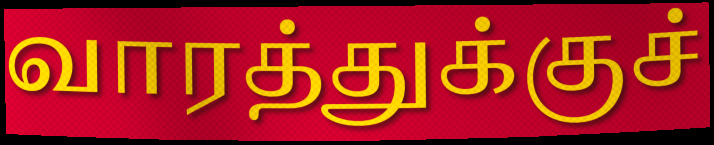
வாரத்துக்குச்